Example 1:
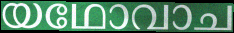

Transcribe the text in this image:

യഥോവാച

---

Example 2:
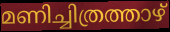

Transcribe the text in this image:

മണിച്ചിത്രത്താഴ്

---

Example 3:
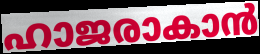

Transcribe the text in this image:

ഹാജരാകാൻ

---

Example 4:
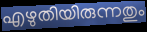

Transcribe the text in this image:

എഴുതിയിരുന്നതും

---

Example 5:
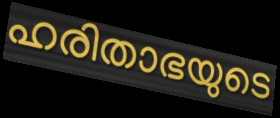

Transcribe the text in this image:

ഹരിതാഭയുടെ